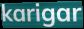
karigar